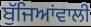
ਬੁੱਜਿਆਂਵਾਲੀ